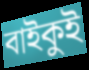
বাইকুই